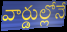
వార్డుల్లోనే